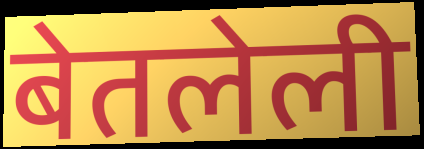
बेतलेली